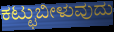
ಕಟ್ಟುಬೀಳುವುದು